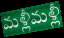
మళ్లీమళ్లీ